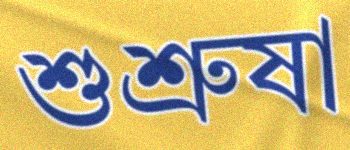
শুশ্ৰুষা